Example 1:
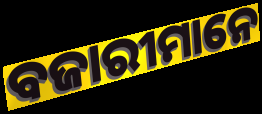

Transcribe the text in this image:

ବଜାରୀମାନେ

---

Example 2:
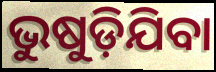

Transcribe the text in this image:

ଭୁଷୁଡ଼ିଯିବା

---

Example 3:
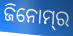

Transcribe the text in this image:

ଜିନୋମ୍‌ର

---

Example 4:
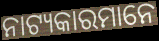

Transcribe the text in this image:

ନାଟ୍ୟକାରମାନେ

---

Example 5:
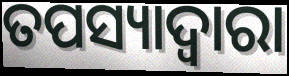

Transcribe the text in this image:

ତପସ୍ୟାଦ୍ୱାରା